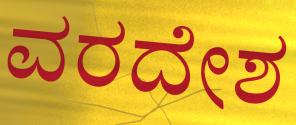
ವರದೇಶ